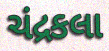
ચંદ્રકલા